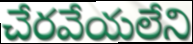
చేరవేయలేని